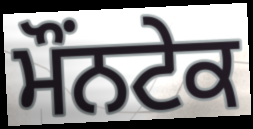
ਮੌਂਨਟੇਕ